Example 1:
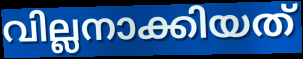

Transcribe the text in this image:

വില്ലനാക്കിയത്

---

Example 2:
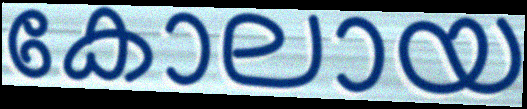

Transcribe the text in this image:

കോലായ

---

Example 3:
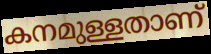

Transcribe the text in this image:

കനമുള്ളതാണ്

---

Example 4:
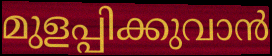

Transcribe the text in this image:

മുളപ്പിക്കുവാൻ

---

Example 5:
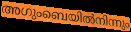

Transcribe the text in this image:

അഗുംബെയിൽനിന്നും